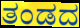
ತಂಡದ